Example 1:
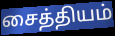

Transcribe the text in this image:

சைத்தியம்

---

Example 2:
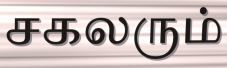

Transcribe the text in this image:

சகலரும்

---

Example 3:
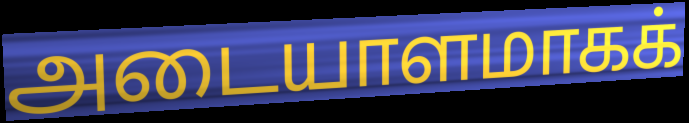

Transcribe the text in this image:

அடையாளமாகக்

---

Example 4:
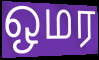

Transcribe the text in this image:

ஒமர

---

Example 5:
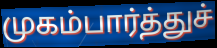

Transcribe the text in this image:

முகம்பார்த்துச்